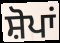
ਸ਼ੋਪਾਂ